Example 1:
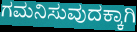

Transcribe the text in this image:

ಗಮನಿಸುವುದಕ್ಕಾಗಿ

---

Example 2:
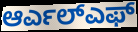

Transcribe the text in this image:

ಆರ್ಎಲ್ಎಫ್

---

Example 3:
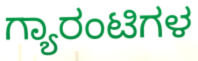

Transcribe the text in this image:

ಗ್ಯಾರಂಟಿಗಳ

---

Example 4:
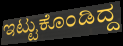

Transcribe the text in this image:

ಇಟ್ಟುಕೊಂಡಿದ್ದ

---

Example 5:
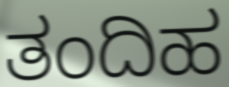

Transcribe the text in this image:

ತಂದಿಹ